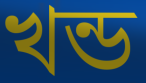
খন্ড